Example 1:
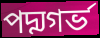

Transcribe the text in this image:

পদ্মগর্ভ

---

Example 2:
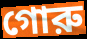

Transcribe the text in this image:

গোরু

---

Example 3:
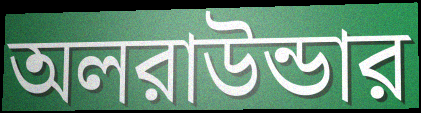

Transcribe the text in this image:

অলরাউন্ডার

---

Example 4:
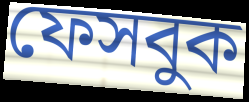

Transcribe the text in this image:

ফেসবুক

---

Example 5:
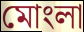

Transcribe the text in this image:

মোংলা